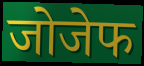
जोजेफ